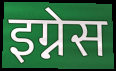
इग्नेस